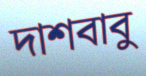
দাশবাবু